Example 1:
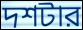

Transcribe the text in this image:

দশটার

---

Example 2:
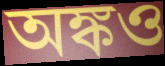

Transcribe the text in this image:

অঙ্কও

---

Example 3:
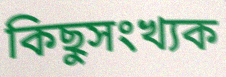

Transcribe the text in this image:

কিছুসংখ্যক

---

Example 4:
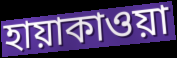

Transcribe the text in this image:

হায়াকাওয়া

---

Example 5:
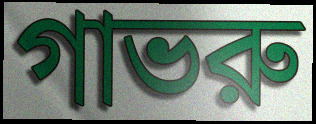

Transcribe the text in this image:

গাভরু